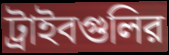
ট্রাইবগুলির